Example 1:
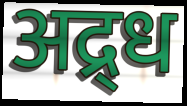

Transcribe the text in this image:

अद्र्ध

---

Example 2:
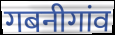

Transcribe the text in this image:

गबनीगांव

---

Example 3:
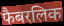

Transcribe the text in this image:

फैबरलिक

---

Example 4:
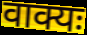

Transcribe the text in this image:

वाक्यः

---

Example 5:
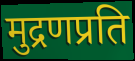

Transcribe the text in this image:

मुद्रणप्रति